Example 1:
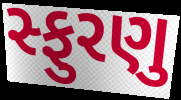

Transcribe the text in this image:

સ્ફુરણુ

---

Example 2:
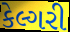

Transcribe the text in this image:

કેલ્ગરી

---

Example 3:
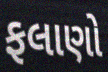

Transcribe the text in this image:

ફલાણો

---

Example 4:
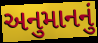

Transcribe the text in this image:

અનુમાનનું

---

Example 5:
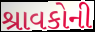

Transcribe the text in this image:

શ્રાવકોની